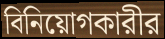
বিনিয়োগকারীর